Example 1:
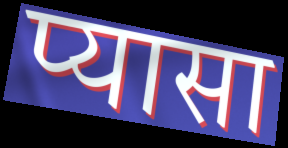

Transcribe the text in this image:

प्यासा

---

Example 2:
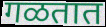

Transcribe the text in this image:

गळतात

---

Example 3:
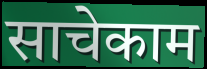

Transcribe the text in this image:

साचेकाम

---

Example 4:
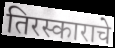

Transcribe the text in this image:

तिरस्काराचे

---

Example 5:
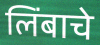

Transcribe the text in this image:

लिंबाचे